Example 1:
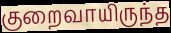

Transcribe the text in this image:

குறைவாயிருந்த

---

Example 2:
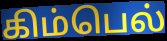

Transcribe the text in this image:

கிம்பெல்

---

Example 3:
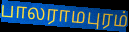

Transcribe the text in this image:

பாலராமபுரம்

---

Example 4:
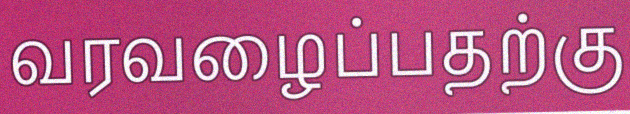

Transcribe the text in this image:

வரவழைப்பதற்கு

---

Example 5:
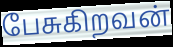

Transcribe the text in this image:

பேசுகிறவன்